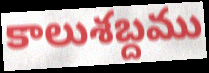
కాలుశబ్దము